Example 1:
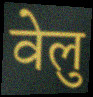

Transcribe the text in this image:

वेलु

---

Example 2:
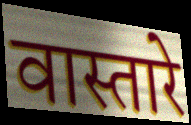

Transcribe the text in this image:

वास्तारे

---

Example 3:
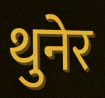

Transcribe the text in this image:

थुनेर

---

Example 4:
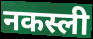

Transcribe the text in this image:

नकस्ली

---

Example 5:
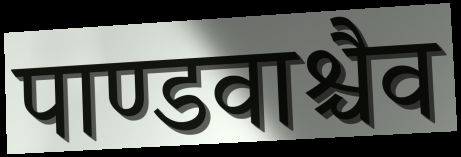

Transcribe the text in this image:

पाण्डवाश्चैव